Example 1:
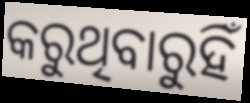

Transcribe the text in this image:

କରୁଥିବାରୁହିଁ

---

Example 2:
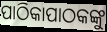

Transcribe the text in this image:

ପାଠିକାପାଠକଙ୍କୁ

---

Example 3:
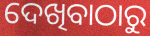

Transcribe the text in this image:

ଦେଖିବାଠାରୁ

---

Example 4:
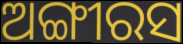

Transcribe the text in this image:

ଅଙ୍ଗୀରସ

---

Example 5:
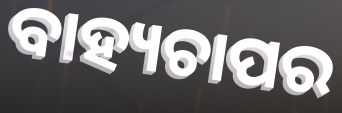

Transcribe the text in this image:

ବାହ୍ୟଚାପର